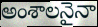
అంశాలనైనా